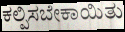
ಕಲ್ಪಿಸಬೇಕಾಯಿತು